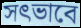
সৎভাবে